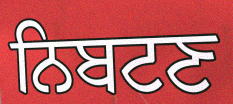
ਨਿਬਟਣ